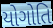
યોગોતિ